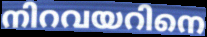
നിറവയറിനെ